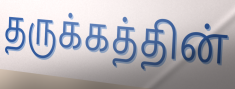
தருக்கத்தின்